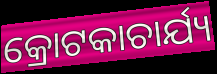
କ୍ରୋଟକାଚାର୍ଯ୍ୟ